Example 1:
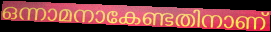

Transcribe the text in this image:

ഒന്നാമനാകേണ്ടതിനാണ്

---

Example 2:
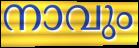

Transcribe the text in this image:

നാവും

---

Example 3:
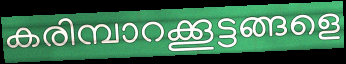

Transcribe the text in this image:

കരിമ്പാറക്കൂട്ടങ്ങളെ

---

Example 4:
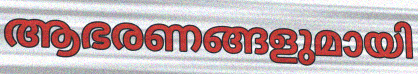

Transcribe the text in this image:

ആഭരണങ്ങളുമായി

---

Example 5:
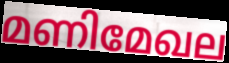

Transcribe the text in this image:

മണിമേഖല